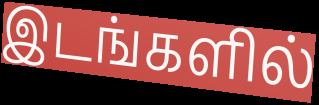
இடங்களில்